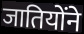
जातियोंने